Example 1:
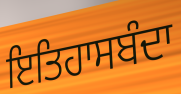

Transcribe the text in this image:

ਇਤਿਹਾਸਬੰਦਾ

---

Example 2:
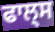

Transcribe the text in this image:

ਫਾਲ੍ਸ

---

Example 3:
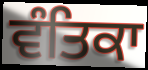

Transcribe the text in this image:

ਵੰਤਿਕਾ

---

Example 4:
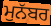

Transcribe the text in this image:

ਮੁਨੱਬਰ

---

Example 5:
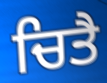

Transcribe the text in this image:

ਚਿਤੈ